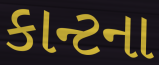
કાન્ટના